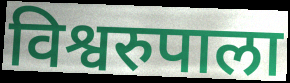
विश्वरुपाला